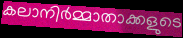
കലാനിർമ്മാതാക്കളുടെ